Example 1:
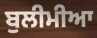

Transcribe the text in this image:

ਬੁਲੀਮੀਆ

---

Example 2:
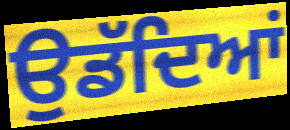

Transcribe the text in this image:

ਉਡੱਦਿਆਂ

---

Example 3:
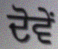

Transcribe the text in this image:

ਦੋਵੇਂ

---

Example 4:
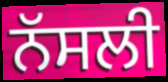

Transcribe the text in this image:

ਨੱਸਲੀ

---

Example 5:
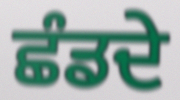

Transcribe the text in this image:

ਛੰਡਦੇ